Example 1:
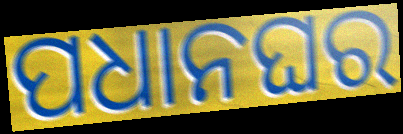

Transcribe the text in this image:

ପଧାନଘର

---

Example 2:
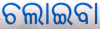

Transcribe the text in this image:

ଚଲାଇବା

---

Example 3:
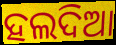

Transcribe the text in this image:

ହଲଦିଆ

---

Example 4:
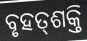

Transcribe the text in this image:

ବୃହତ୍‌ଶକ୍ତି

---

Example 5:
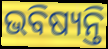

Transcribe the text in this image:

ଭବିଷ୍ୟନ୍ତି